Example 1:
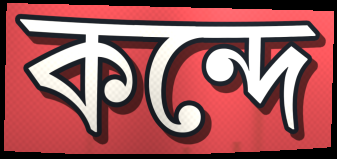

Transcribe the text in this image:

কন্দে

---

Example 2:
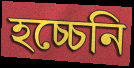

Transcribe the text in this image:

হচ্চেনি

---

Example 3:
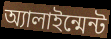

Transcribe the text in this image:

অ্যালাইন্মেন্ট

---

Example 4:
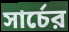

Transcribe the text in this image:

সার্চের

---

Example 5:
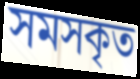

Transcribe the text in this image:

সমসকৃত